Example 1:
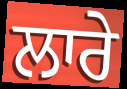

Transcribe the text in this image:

ਲਾਰੇ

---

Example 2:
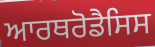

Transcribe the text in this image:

ਆਰਥਰੋਡੈਸਿਸ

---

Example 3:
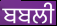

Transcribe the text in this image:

ਬਬਲੀ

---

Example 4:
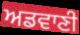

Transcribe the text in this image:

ਅਡਵਾਣੀ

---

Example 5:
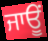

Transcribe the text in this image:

ਜਾਊਂ